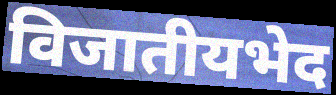
विजातीयभेद